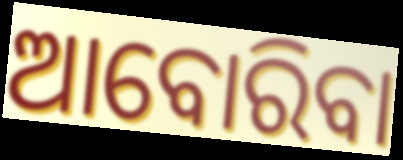
ଆବୋରିବା